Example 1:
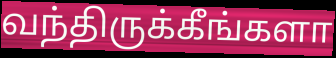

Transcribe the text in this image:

வந்திருக்கீங்களா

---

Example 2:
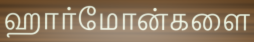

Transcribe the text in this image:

ஹார்மோன்களை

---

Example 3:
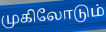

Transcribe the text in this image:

முகிலோடும்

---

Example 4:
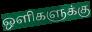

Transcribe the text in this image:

ஒளிகளுக்கு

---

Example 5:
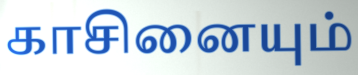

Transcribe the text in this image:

காசினையும்